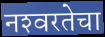
नश्वरतेचा